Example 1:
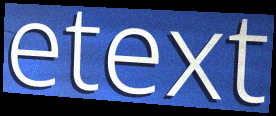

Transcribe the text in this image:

etext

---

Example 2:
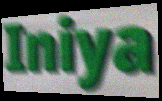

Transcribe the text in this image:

Iniya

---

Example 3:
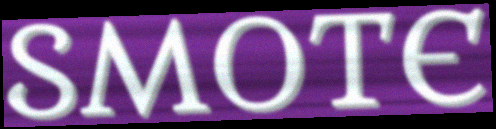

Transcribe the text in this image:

SMOTE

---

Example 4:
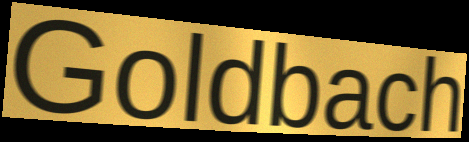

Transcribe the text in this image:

Goldbach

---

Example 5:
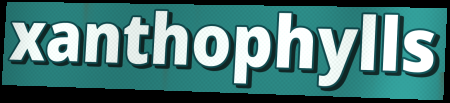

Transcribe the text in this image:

xanthophylls